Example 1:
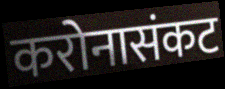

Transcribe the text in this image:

करोनासंकट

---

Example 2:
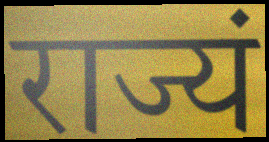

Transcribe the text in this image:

राज्यं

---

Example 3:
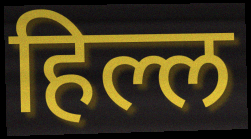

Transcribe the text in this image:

हिल्ल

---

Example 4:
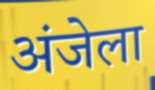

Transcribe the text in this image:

अंजेला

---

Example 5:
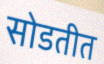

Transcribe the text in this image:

सोडतीत